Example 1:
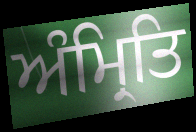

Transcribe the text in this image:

ਅੰਮ੍ਰਿਤਿ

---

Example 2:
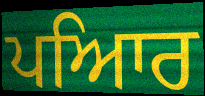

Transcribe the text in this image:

ਪਆਿਰ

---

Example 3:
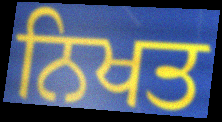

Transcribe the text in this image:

ਨਿਖਤ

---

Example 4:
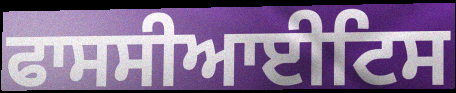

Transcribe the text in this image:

ਫਾਸਸੀਆਈਟਿਸ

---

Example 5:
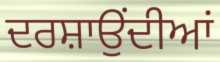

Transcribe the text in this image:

ਦਰਸ਼ਾਉਂਦੀਆਂ